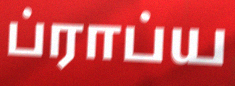
ப்ராப்ய